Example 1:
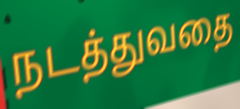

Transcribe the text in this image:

நடத்துவதை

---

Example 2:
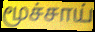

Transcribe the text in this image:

மூச்சாய்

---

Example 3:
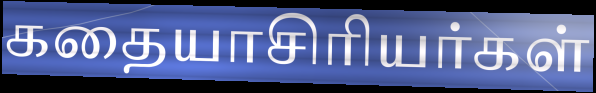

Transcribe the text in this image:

கதையாசிரியர்கள்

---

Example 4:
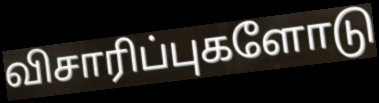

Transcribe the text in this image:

விசாரிப்புகளோடு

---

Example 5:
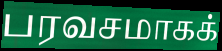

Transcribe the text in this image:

பரவசமாகக்